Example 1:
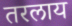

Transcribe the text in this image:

तरलाय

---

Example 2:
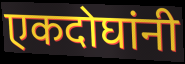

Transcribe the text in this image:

एकदोघांनी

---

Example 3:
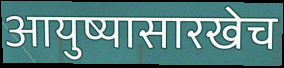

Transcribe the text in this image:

आयुष्यासारखेच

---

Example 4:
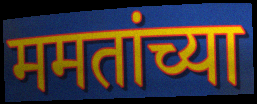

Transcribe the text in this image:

ममतांच्या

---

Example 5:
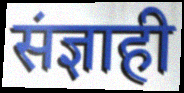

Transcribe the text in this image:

संज्ञाही